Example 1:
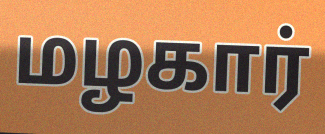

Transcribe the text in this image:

மழகார்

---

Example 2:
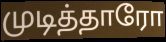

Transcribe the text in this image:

முடித்தாரோ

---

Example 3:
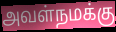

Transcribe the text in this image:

அவள்நமக்கு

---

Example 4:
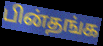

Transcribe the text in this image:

பின்தங்க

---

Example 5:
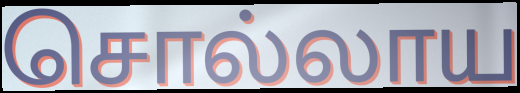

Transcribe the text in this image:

சொல்லாய